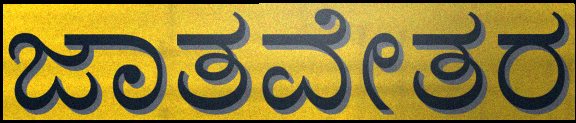
ಜಾತವೇತರ